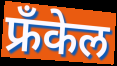
फ्रँकेल